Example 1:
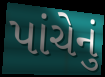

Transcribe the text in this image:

પાંચેનું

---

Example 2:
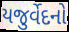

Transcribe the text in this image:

યજુર્વેદનો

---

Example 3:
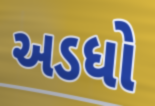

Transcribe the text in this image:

અડધો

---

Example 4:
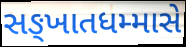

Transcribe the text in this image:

સઙ્ખાતધમ્માસે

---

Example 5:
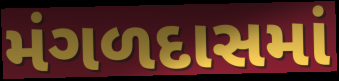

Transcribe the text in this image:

મંગળદાસમાં